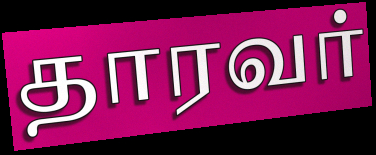
தாரவர்